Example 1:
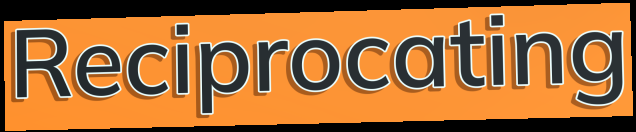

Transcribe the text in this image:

Reciprocating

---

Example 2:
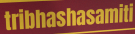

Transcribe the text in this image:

tribhashasamiti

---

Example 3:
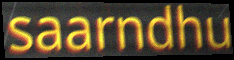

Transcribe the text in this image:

saarndhu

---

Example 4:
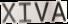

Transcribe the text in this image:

XIVA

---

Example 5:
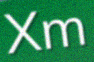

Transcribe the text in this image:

Xm